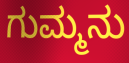
ಗುಮ್ಮನು